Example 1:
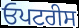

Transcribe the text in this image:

ਓਪਟਰੀਸ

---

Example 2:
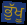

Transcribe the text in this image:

ਭੁੱਖੂ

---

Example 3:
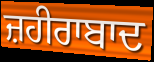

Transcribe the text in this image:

ਜ਼ਹੀਰਾਬਾਦ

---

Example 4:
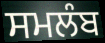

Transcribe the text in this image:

ਸਮਲੰਬ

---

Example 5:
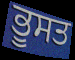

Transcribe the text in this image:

ਭੂਸਤ